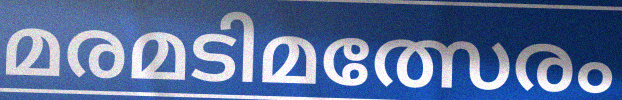
മരമടിമത്സേരം